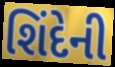
શિંદેની